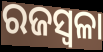
ରଜସ୍ବଳା